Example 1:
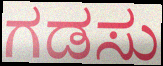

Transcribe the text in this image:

ಗಡಸು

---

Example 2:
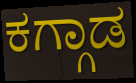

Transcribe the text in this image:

ಕಗ್ಗಾಡ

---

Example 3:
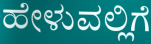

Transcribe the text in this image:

ಹೇಳುವಲ್ಲಿಗೆ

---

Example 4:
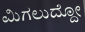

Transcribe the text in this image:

ಮಿಗಲುದ್ದೋ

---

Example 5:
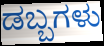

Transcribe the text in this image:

ಡಬ್ಬಗಳು